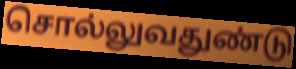
சொல்லுவதுண்டு